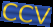
CCV